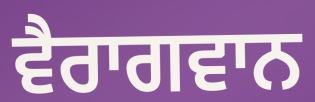
ਵੈਰਾਗਵਾਨ